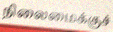
நிலைமைக்குச்